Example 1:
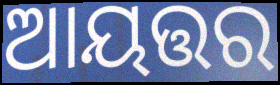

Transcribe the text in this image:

ଆୟତ୍ତର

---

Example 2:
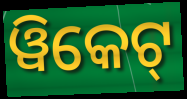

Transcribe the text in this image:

ୱିକେଟ୍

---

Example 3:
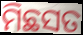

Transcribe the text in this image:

ମିଛସତ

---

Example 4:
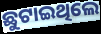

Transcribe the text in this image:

ଛୁଟାଇଥିଲେ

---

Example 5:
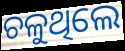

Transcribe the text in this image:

ଚଳୁଥିଲେ